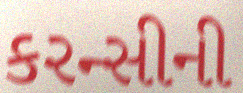
કરન્સીની